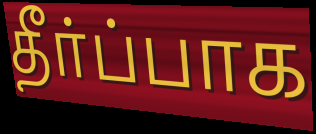
தீர்ப்பாக